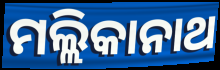
ମଲ୍ଲିକାନାଥ